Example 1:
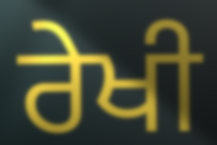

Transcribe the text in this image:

ਰੇਖੀ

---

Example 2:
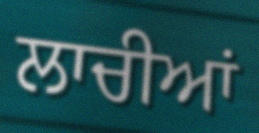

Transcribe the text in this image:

ਲਾਚੀਆਂ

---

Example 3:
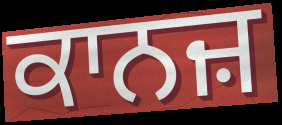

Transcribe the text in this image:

ਕਾਨਜ਼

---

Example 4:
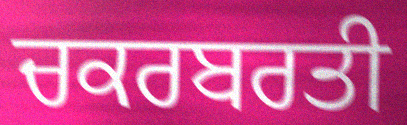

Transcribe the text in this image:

ਚਕਰਬਰਤੀ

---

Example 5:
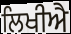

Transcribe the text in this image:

ਲਿਖੀਐ